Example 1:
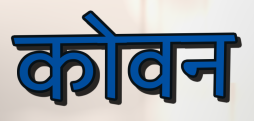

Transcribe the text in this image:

कोवन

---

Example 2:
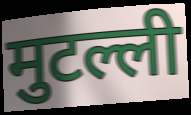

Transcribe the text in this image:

मुटल्ली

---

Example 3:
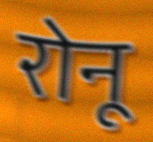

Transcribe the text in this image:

रोनू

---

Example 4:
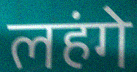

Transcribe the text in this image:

लहंगे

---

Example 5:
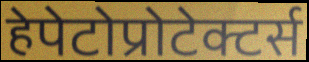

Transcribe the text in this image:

हेपेटोप्रोटेक्टर्स